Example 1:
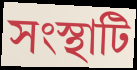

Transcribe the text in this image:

সংস্থাটি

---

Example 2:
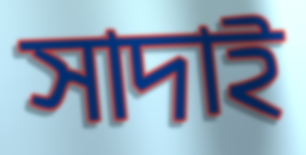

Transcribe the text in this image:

সাদাই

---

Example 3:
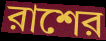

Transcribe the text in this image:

রাশের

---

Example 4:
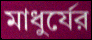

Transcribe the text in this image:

মাধুর্যের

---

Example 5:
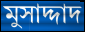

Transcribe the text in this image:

মুসাদ্দাদ